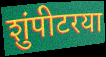
शुंपीटरया